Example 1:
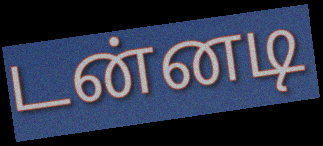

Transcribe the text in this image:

டன்னடி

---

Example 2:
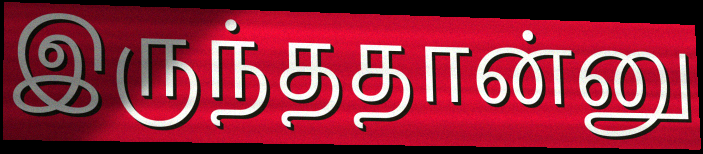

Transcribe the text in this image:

இருந்ததான்னு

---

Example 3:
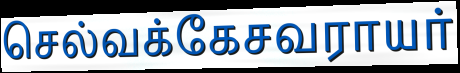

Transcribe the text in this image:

செல்வக்கேசவராயர்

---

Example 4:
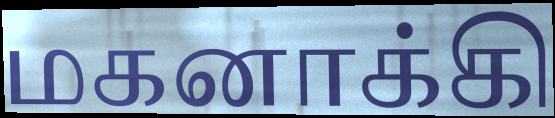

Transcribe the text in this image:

மகனாக்கி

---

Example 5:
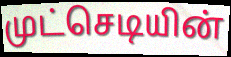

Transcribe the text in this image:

முட்செடியின்